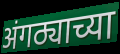
अंगठ्याच्या